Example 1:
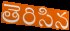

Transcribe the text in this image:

తెరిసిన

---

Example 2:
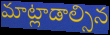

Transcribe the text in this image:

మాట్లాడాల్సిన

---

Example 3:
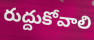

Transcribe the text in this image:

రుద్దుకోవాలి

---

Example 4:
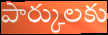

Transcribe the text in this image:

పార్కులకు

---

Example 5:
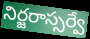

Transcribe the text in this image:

నిర్జరాస్సర్వే